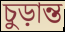
চুড়ান্ত